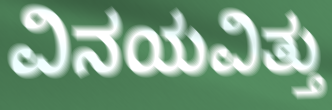
ವಿನಯವಿತ್ತು